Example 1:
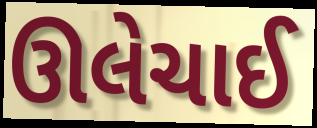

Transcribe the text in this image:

ઊલેચાઈ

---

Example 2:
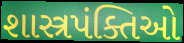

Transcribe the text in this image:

શાસ્ત્રપંક્તિઓ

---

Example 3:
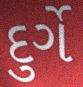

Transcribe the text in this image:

દુર્ગે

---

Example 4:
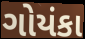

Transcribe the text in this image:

ગોયંકા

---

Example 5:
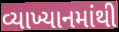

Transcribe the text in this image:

વ્યાખ્યાનમાંથી